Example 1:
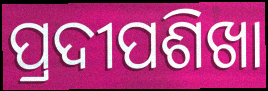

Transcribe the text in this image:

ପ୍ରଦୀପଶିଖା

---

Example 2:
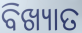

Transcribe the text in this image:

ବିଖ୍ୟାତ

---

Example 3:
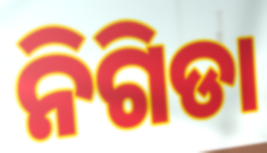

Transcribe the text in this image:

ନିଗିଡା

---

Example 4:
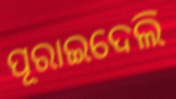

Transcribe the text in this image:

ପୂରାଇଦେଲି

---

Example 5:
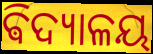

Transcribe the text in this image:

ଵିଦ୍ୟାଳୟ